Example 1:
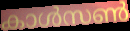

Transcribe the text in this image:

കാൾസൺ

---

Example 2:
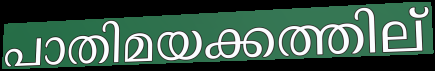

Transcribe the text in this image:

പാതിമയക്കത്തില്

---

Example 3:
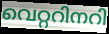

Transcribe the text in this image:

വെറ്ററിനറി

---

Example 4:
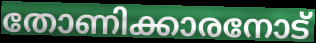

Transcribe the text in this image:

തോണിക്കാരനോട്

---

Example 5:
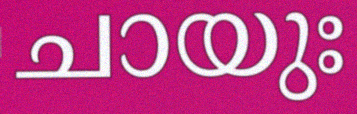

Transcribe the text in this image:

ചായുഃ